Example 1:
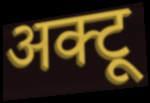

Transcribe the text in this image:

अक्टू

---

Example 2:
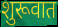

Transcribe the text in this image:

शुरूवात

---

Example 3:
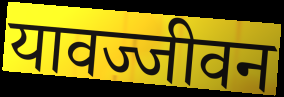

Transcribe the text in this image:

यावज्जीवन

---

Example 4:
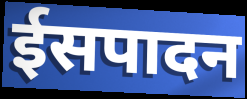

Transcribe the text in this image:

ईसपादन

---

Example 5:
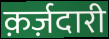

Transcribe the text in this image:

क़र्ज़दारी